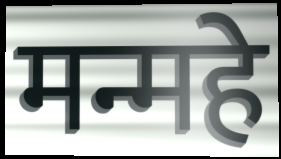
मन्महे